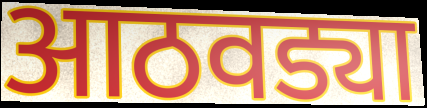
आठवड्या